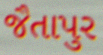
જૈતાપુર